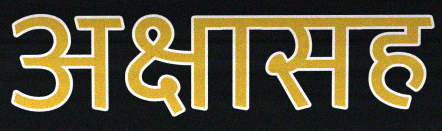
अक्षासह